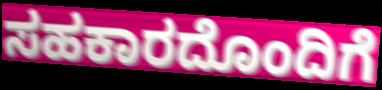
ಸಹಕಾರದೊಂದಿಗೆ